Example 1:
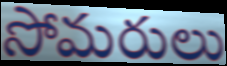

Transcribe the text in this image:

సోమరులు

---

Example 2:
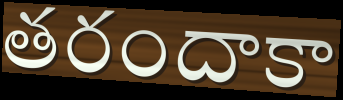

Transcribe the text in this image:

తరందాకా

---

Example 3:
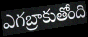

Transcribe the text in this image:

ఎగబ్రాకుతోంది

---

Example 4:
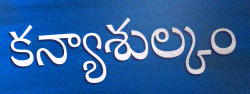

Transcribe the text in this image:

కన్యాశుల్కం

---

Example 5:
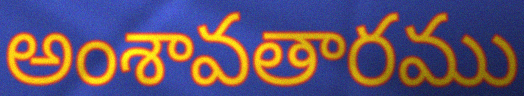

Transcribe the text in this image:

అంశావతారము